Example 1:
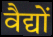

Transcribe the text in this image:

वैद्यों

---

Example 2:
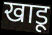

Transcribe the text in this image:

खाडू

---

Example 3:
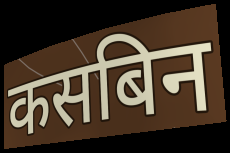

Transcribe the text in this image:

कसबिन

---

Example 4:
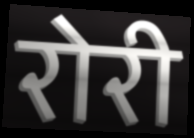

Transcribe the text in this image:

रोरी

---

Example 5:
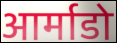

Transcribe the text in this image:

आर्माडो